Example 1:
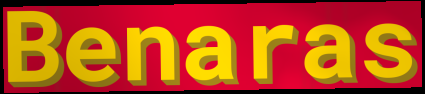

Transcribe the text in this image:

Benaras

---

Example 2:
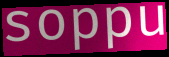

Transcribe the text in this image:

soppu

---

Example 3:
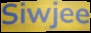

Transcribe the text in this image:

Siwjee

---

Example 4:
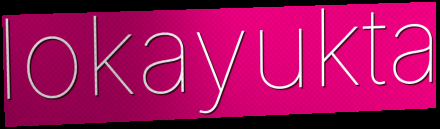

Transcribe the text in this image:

lokayukta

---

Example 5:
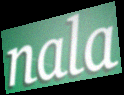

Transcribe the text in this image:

nala